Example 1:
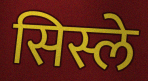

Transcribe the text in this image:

सिस्ले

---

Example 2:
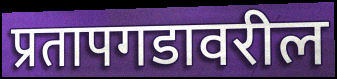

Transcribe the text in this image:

प्रतापगडावरील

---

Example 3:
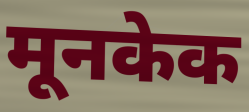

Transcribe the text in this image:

मूनकेक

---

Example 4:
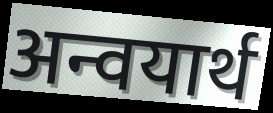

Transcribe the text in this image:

अन्वयार्थ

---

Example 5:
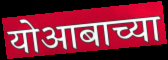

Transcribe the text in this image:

योआबाच्या